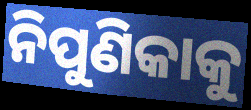
ନିପୁଣିକାକୁ